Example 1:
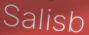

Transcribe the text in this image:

Salisb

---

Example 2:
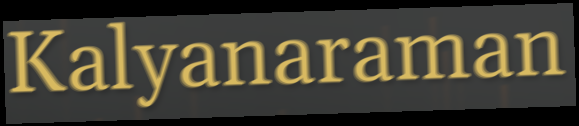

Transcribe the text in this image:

Kalyanaraman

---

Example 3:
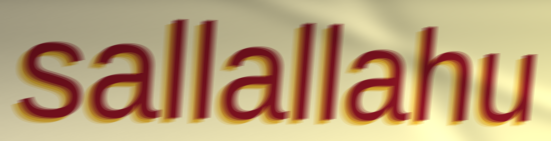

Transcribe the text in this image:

sallallahu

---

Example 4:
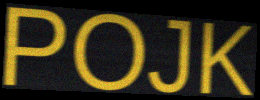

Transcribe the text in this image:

POJK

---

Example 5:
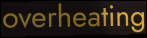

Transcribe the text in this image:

overheating